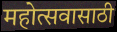
महोत्सवासाठी